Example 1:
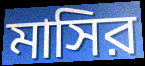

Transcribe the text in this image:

মাসির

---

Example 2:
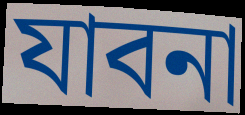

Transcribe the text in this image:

যাবনা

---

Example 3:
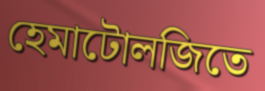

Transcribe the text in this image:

হেমাটোলজিতে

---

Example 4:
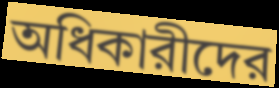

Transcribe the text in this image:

অধিকারীদের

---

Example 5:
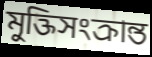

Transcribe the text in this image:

মুক্তিসংক্রান্ত